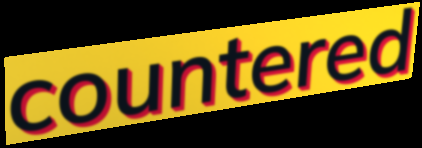
countered